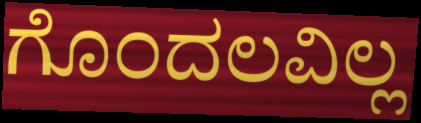
ಗೊಂದಲವಿಲ್ಲ